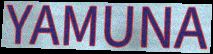
YAMUNA